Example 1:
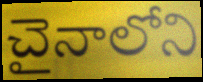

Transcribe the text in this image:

చైనాలోని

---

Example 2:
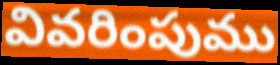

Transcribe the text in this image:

వివరింపుము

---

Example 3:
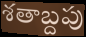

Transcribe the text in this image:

శతాబ్దపు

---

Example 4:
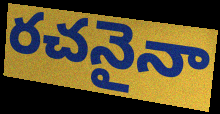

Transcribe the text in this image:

రచనైనా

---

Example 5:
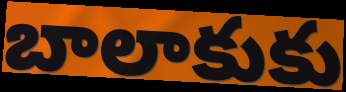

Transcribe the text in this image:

బాలాకుకు